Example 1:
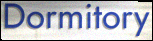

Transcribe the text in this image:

Dormitory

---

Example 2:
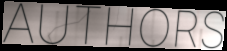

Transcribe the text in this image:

AUTHORS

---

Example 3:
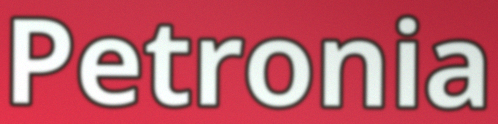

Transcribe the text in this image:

Petronia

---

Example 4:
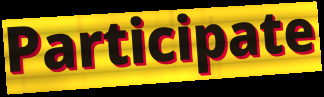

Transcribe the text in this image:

Participate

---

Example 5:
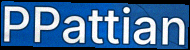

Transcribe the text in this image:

PPattian